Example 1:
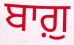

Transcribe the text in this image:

ਬਾਗ਼ੁ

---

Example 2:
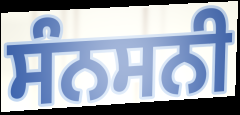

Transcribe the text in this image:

ਸੰਨਸਨੀ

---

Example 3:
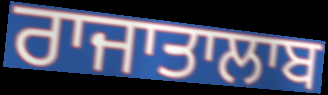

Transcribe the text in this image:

ਰਾਜਾਤਾਲਾਬ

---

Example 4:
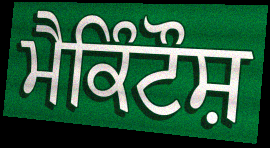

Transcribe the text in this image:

ਮੈਕਿੰਟੌਸ਼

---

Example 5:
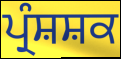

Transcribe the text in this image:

ਪ੍ਰੰਸ਼ਸ਼ਕ